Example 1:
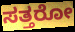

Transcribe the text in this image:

ಸತ್ತರೋ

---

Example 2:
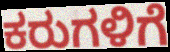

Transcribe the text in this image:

ಕರುಗಳಿಗೆ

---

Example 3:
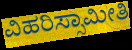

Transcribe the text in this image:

ವಿಹರಿಸ್ಸಾಮೀತಿ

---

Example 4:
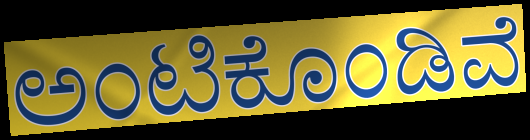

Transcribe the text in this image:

ಅಂಟಿಕೊಂಡಿವೆ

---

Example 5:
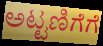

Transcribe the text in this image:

ಅಟ್ಟಣಿಗೆಗೆ